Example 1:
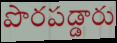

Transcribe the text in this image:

పొరపడ్డారు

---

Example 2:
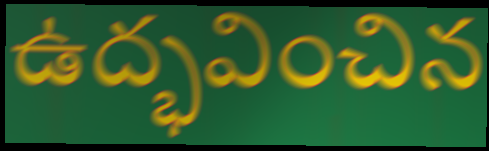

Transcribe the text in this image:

ఉద్భవించిన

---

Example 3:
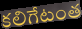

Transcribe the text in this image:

కలిగేటంత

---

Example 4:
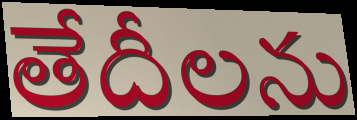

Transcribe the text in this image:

తేదీలను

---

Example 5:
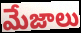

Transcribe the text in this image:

మేజాలు